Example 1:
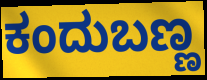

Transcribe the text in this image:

ಕಂದುಬಣ್ಣ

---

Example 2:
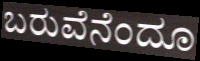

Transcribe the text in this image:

ಬರುವೆನೆಂದೂ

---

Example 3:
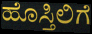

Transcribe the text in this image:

ಹೊಸ್ತಿಲಿಗೆ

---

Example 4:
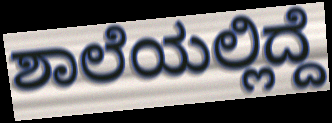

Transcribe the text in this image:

ಶಾಲೆಯಲ್ಲಿದ್ದೆ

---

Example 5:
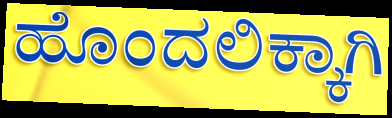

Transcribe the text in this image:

ಹೊಂದಲಿಕ್ಕಾಗಿ